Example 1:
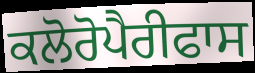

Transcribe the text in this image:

ਕਲੋਰੋਪੈਰੀਫਾਸ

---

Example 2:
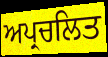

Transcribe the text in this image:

ਅਪ੍ਰਚਲਿਤ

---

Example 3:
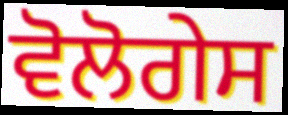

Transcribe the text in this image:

ਵੋਲੋਗੇਸ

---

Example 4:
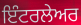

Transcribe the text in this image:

ਇੰਟਰਲੇਅਰ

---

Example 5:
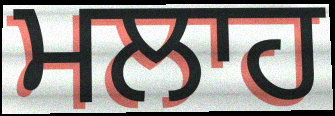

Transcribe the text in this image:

ਮਲਾਹ